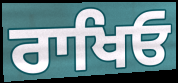
ਰਾਖਿਓ